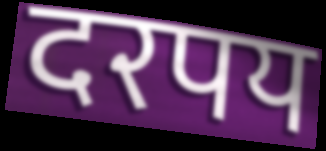
दरपय